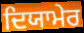
ਦਿਯਾਮੇਰ